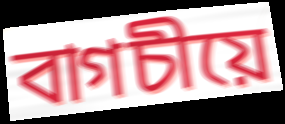
বাগচীয়ে